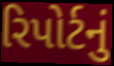
રિપોર્ટનું